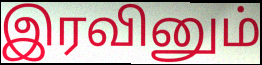
இரவினும்